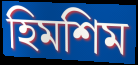
হিমশিম